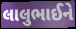
લાલુભાઈને